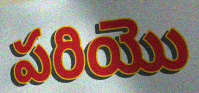
పరియొ